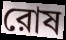
রোষ